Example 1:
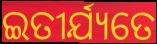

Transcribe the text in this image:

ଇତୀର୍ଯ୍ୟତେ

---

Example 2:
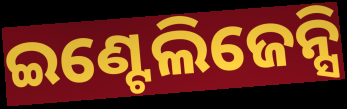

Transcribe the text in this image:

ଇଣ୍ଟେଲିଜେନ୍ସି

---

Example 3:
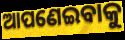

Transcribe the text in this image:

ଆପଣେଇବାକୁ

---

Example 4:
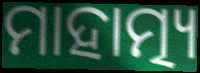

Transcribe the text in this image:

ମାହାତ୍ମ୍ୟ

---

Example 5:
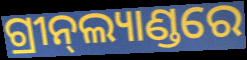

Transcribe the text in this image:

ଗ୍ରୀନ୍‍ଲ୍ୟାଣ୍ଡରେ